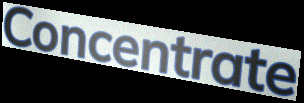
Concentrate